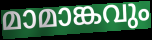
മാമാങ്കവും